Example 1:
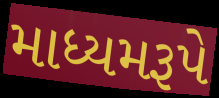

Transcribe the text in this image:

માધ્યમરૂપે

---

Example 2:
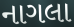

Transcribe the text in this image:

નાગલા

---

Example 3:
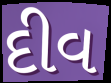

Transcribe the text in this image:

દીવ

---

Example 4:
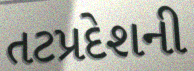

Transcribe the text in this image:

તટપ્રદેશની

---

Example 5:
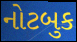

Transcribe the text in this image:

નોટબુક